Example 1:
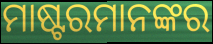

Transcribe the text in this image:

ମାଷ୍ଟରମାନଙ୍କର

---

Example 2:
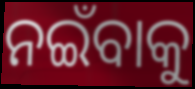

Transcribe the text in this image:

ନଇଁବାକୁ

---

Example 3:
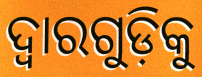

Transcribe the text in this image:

ଦ୍ୱାରଗୁଡ଼ିକୁ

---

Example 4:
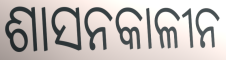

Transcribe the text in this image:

ଶାସନକାଳୀନ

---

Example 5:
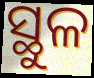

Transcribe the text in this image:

ସ୍ଥୁଳ